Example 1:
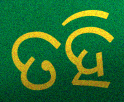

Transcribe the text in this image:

ତହି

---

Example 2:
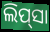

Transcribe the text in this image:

ଲିପ୍‌ସା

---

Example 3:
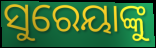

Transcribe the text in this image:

ସୁରେୟାଙ୍କୁ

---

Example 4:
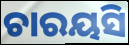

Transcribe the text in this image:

ଚାରୟସି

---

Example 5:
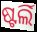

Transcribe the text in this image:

ଷ୍ଟର୍ଲି